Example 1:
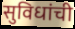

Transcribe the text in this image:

सुविधांची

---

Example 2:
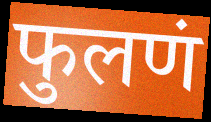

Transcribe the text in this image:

फुलणं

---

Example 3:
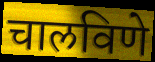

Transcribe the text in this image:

चालविणे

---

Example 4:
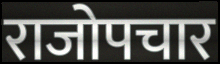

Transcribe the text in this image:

राजोपचार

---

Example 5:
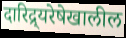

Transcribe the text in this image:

दारिद्र्यरेषेखालील